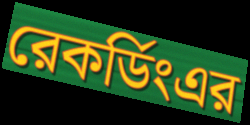
রেকর্ডিংএর